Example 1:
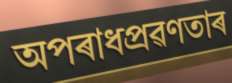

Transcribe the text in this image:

অপৰাধপ্ৰৱণতাৰ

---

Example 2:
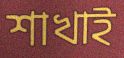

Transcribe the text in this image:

শাখাই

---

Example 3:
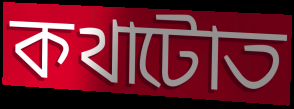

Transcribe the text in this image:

কথাটোত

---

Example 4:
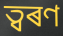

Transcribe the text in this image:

ত্বৰণ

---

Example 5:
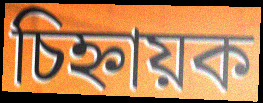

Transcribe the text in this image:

চিহ্নায়ক